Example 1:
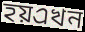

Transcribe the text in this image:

হয়এখন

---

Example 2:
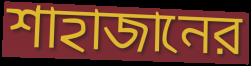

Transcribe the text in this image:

শাহাজানের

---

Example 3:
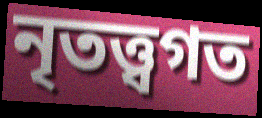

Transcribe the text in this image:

নৃতত্ত্বগত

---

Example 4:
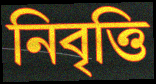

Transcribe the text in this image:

নিবৃত্তি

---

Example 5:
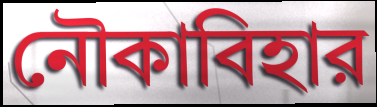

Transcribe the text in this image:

নৌকাবিহার